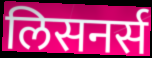
लिसनर्स